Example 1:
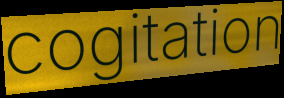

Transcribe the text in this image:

cogitation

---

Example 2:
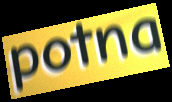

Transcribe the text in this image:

potna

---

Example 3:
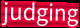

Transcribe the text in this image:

judging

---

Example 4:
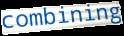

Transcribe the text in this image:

combining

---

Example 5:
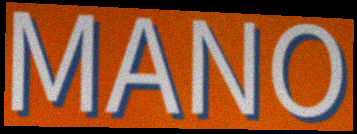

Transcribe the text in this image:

MANO